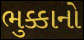
ભુક્કાનો